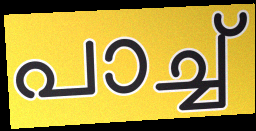
പാച്ച്